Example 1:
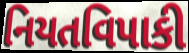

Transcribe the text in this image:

નિયતવિપાકી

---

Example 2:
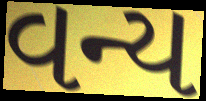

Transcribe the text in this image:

વન્ય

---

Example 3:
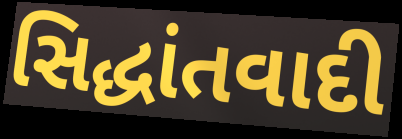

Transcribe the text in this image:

સિદ્ધાંતવાદી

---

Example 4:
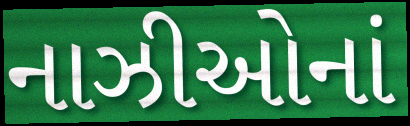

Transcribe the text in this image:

નાઝીઓનાં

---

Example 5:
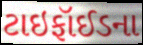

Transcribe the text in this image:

ટાઇફૉઈડના